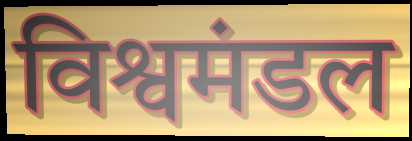
विश्वमंडल